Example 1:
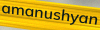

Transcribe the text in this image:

amanushyan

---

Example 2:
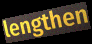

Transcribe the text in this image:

lengthen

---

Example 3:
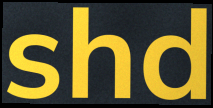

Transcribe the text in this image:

shd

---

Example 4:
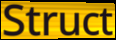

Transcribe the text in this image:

Struct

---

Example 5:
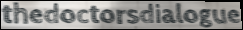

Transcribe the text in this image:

thedoctorsdialogue